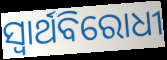
ସ୍ବାର୍ଥବିରୋଧୀ